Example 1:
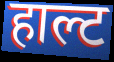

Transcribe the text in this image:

हाल्ट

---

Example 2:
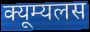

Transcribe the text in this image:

क्यूम्यलस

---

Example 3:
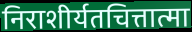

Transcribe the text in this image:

निराशीर्यतचित्तात्मा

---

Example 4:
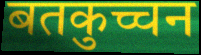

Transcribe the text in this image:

बतकुच्चन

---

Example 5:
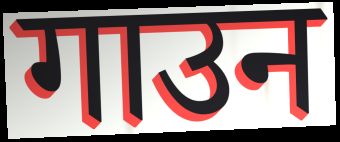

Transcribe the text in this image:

गाउन